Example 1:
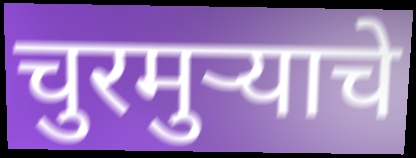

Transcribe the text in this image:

चुरमुऱ्याचे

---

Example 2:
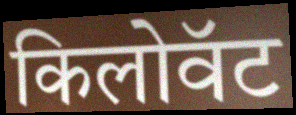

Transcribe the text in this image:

किलोवॅट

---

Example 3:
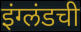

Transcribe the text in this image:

इंग्लंडची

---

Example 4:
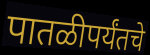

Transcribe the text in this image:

पातळीपर्यंतचे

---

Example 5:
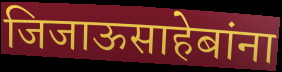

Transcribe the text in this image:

जिजाऊसाहेबांना